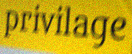
privilage